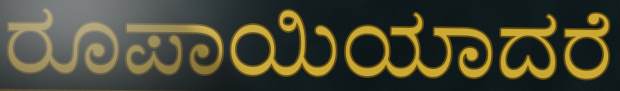
ರೂಪಾಯಿಯಾದರೆ